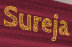
Sureja